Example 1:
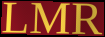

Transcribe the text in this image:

LMR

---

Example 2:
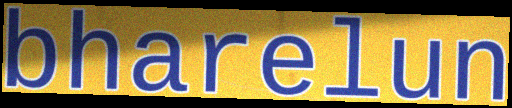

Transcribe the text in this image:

bharelun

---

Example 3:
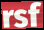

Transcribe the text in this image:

rsf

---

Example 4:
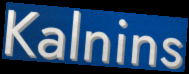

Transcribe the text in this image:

Kalnins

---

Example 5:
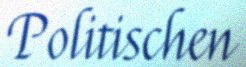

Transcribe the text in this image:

Politischen